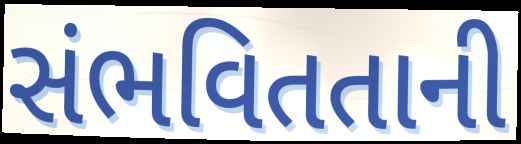
સંભવિતતાની